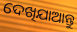
ଦେଖିଯାଆନ୍ତୁ